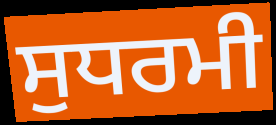
ਸੁਧਰਮੀ